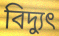
বিদ্যুৎ